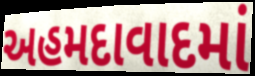
અહમદાવાદમાં